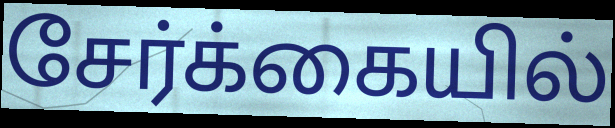
சேர்க்கையில்